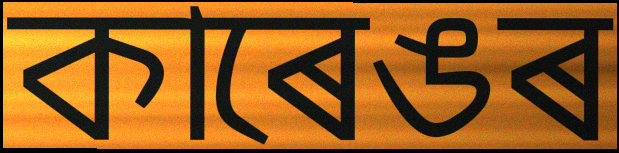
কাৰেঙৰ